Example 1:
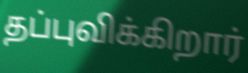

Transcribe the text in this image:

தப்புவிக்கிறார்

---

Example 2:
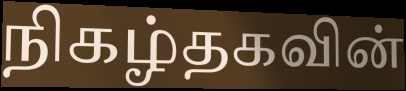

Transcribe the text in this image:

நிகழ்தகவின்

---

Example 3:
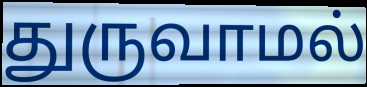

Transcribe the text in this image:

துருவாமல்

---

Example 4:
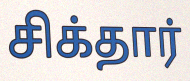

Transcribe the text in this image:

சிக்தார்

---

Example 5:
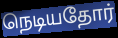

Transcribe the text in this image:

நெடியதோர்